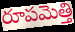
రూపమెత్తి